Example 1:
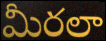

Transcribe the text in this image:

మీరలా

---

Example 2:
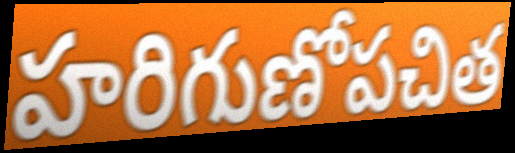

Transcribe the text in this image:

హరిగుణోపచిత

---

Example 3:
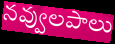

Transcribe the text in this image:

నవ్వులపాలు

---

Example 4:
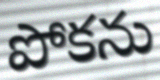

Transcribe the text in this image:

పోకను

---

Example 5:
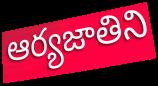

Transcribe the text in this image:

ఆర్యజాతిని